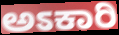
ಅಽಕಾರಿ